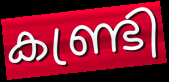
കണ്ട്രി